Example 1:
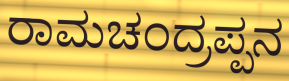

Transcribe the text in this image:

ರಾಮಚಂದ್ರಪ್ಪನ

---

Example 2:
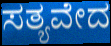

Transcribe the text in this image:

ಸತ್ಯವೇದ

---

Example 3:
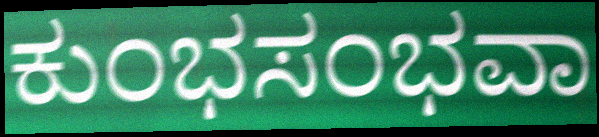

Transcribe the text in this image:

ಕುಂಭಸಂಭವಾ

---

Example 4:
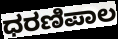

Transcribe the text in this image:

ಧರಣಿಪಾಲ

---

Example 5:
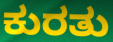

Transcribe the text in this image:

ಕುರತು